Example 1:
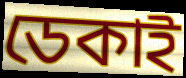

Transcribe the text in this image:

ডেকাই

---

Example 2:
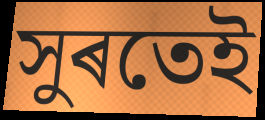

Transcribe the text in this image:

সুৰতেই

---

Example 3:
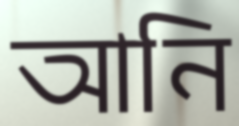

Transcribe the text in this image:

আনি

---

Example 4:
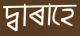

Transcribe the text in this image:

দ্বাৰাহে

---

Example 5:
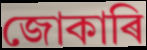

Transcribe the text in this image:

জোকাৰি